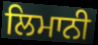
ਲਿਮਾਨੀ